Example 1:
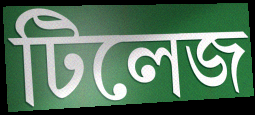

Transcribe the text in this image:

টিলেজ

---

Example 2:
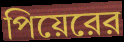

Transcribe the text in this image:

পিয়েরের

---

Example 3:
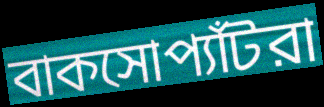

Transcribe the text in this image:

বাকসোপ্যাঁটরা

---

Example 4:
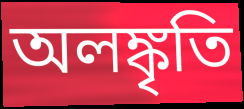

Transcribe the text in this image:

অলঙ্কৃতি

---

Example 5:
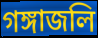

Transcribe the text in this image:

গঙ্গাজলি